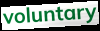
voluntary